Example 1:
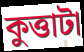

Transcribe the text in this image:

কুত্তাটা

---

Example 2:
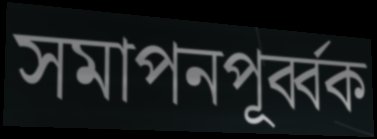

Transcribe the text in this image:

সমাপনপূর্ব্বক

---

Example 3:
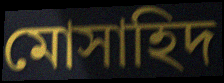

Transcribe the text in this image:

মোসাহিদ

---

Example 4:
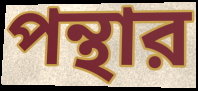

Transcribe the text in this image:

পন্থার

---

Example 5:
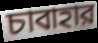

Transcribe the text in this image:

চাবাহার